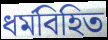
ধর্মবিহিত